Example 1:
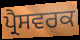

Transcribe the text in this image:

ਪ੍ਰੈਸਵਰਕ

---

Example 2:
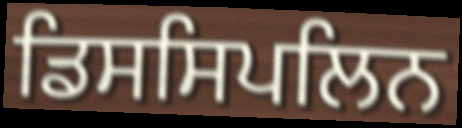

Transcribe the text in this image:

ਡਿਸਸਿਪਲਿਨ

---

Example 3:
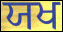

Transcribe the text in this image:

ਯਖ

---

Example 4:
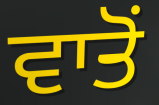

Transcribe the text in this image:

ਵਾਤੋਂ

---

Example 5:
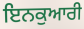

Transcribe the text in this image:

ਇਨਕੁਆਰੀ